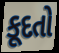
કૂદતો